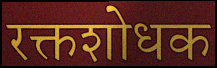
रक्तशोधक